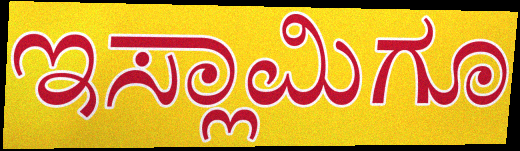
ಇಸ್ಲಾಮಿಗೂ